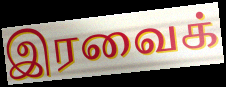
இரவைக்